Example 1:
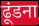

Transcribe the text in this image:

ढूंडना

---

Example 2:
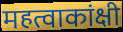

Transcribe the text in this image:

महत्‍वाकांक्षी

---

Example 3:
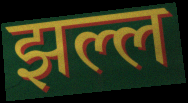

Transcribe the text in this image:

झल्ल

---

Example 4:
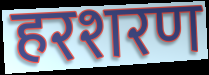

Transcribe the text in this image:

हरशरण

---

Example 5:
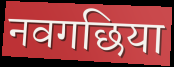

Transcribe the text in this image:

नवगछिया